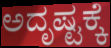
ಅದೃಷ್ಟಕ್ಕೆ